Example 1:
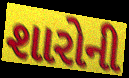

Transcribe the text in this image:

શારોની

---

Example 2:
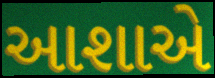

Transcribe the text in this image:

આશાએ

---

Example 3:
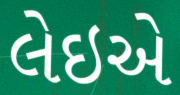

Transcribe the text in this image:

લેઇએ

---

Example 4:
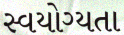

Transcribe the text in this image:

સ્વયોગ્યતા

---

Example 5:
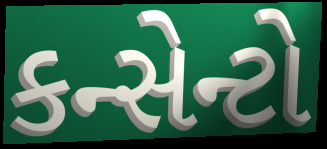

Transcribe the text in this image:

કન્સેન્ટો